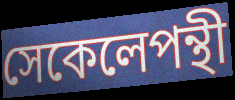
সেকেলেপন্থী